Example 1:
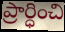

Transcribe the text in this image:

ప్రార్ధించి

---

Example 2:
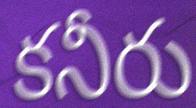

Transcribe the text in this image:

కనీరు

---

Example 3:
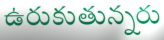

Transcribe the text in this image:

ఉరుకుతున్నరు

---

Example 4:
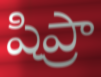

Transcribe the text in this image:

షిప్రా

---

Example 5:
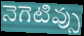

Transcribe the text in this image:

నెగెటివ్సు